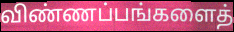
விண்ணப்பங்களைத்